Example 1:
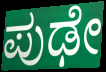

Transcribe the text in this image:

ಪುಢೇ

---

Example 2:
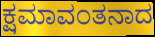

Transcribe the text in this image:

ಕ್ಷಮಾವಂತನಾದ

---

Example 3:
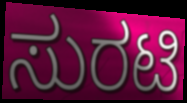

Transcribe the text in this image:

ಸುರಟಿ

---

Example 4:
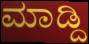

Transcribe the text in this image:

ಮಾಡ್ದಿ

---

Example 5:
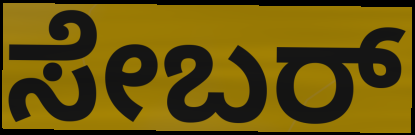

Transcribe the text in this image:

ಸೇಬರ್